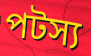
পটস্য